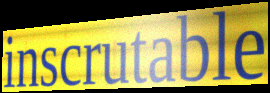
inscrutable